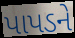
પાપડને